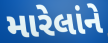
મારેલાંને